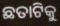
ଛତାଟିକୁ